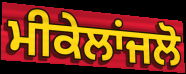
ਮੀਕੇਲਾਂਜਲੋ